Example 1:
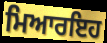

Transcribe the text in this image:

ਮਿਆਰਇਹ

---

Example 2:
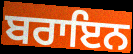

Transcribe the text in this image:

ਬਰਾਇਨ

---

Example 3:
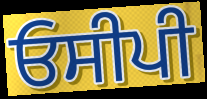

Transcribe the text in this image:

ਓਸੀਪੀ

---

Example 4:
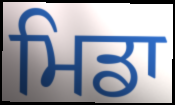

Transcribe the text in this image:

ਮਿਡਾ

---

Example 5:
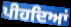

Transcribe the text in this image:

ਪੀਹਦਿਆਂ